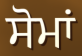
ਸੋਮਾਂ